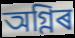
অগ্নিৰ